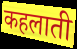
कहलाती